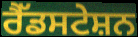
ਰੈੱਡਸਟੇਸ਼ਨ